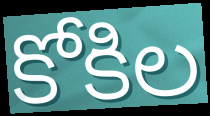
కోకిల